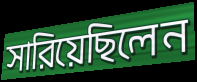
সারিয়েছিলেন